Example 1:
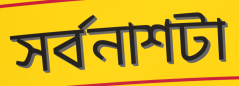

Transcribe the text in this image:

সর্বনাশটা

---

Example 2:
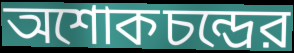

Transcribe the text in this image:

অশোকচন্দ্রের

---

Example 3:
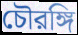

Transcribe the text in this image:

চৌরঙ্গি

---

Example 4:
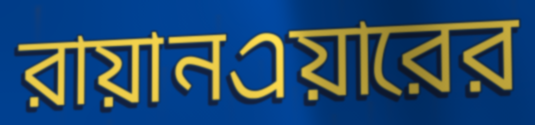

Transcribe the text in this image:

রায়ানএয়ারের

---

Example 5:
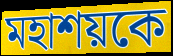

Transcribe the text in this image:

মহাশয়কে